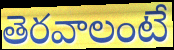
తెరవాలంటే